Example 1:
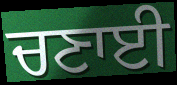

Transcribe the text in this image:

ਚਣਾਈ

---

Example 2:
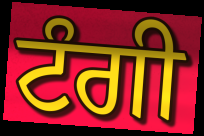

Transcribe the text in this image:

ਟੰਗੀ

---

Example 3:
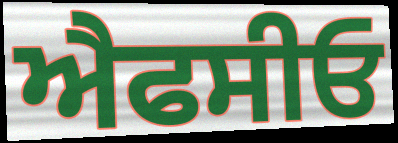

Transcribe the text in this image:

ਐਫਸੀਓ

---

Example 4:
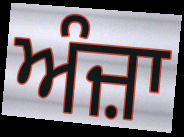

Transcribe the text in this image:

ਅੰਜ਼ਾ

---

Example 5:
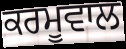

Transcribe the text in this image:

ਕਰਮੂਵਾਲ